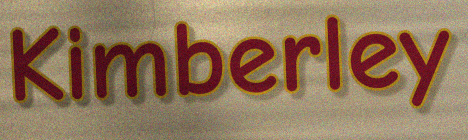
Kimberley